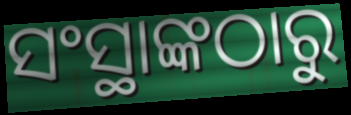
ସଂସ୍ଥାଙ୍କଠାରୁ